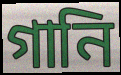
গানি